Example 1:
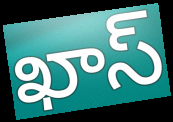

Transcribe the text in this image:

ఖాస్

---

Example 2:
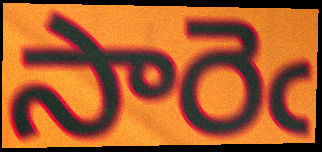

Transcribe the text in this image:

సారెఁ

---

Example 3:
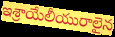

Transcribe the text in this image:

ఇశ్రాయేలీయురాలైన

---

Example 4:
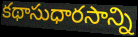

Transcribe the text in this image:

కథాసుధారసాన్ని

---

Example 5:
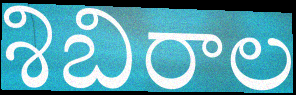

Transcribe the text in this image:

శిబిరాల